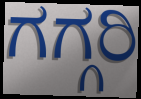
ಗಗ್ಗರಿ